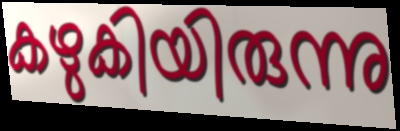
കഴുകിയിരുന്നു